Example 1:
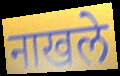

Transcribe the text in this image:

नाखले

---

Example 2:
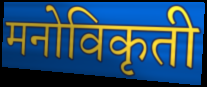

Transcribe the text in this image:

मनोविकृती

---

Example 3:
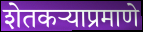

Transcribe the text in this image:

शेतकऱ्याप्रमाणे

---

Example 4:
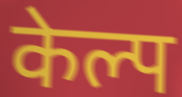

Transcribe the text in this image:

केल्प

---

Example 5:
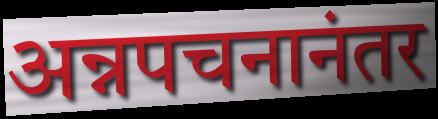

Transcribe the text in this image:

अन्नपचनानंतर